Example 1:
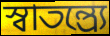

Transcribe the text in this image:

স্বাতন্ত্র্যে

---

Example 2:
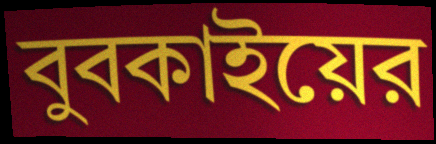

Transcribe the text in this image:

বুবকাইয়ের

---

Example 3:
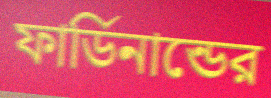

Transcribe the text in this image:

ফার্ডিনান্ডের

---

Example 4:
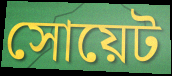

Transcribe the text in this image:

সোয়েট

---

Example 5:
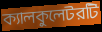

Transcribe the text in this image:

ক্যালকুলেটরটি